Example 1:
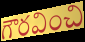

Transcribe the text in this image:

గౌరవించి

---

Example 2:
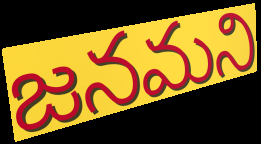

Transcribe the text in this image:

జనమని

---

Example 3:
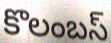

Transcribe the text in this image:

కొలంబస్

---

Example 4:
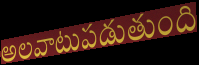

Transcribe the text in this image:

అలవాటుపడుతుంది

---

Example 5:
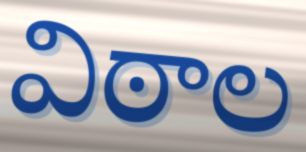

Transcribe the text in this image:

విఠాల